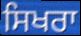
ਸਿਖਰਾ